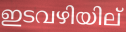
ഇടവഴിയില്